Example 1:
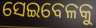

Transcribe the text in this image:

ସେଇବେଳକୁ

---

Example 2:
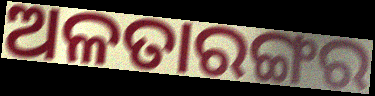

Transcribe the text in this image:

ଅଳତାରଙ୍ଗର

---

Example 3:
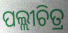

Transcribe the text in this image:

ପଲ୍ଲୀଚିତ୍ର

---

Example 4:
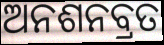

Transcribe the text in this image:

ଅନଶନବ୍ରତ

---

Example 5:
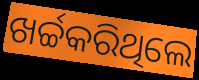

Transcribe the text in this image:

ଖର୍ଚ୍ଚକରିଥିଲେ